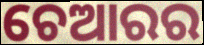
ଚେଆରର